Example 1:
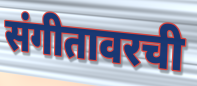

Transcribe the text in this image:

संगीतावरची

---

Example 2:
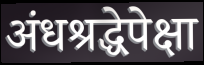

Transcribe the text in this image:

अंधश्रद्धेपेक्षा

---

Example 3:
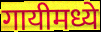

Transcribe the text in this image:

गायीमध्ये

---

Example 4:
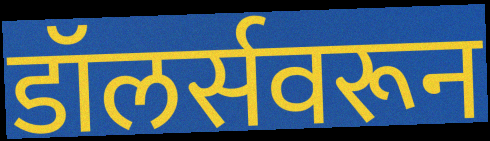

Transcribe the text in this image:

डॉलर्सवरून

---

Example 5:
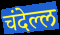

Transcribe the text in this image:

चंदेल्ल